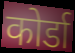
कोर्डा